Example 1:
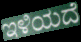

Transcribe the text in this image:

ಇಳಿಯದೆ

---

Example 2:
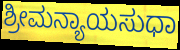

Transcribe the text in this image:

ಶ್ರೀಮನ್ಯಾಯಸುಧಾ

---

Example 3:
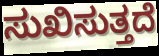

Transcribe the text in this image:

ಸುಖಿಸುತ್ತದೆ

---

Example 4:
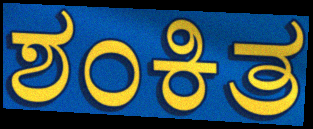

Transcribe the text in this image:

ಶಂಕಿತ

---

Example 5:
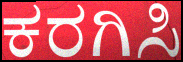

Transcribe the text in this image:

ಕರಗಿಸಿ